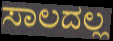
ಸಾಲದಲ್ಲ